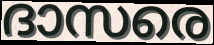
ദാസരെ